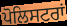
ਪੋਲਿਸਟਰਾਂ